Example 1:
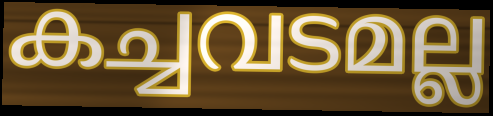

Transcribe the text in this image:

കച്ചവടമല്ല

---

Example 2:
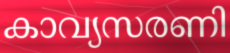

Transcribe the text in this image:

കാവ്യസരണി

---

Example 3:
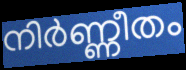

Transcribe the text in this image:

നിർണ്ണീതം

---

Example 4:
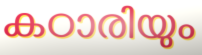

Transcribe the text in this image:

കഠാരിയും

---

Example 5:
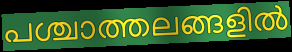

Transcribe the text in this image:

പശ്ചാത്തലങ്ങളിൽ